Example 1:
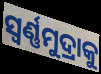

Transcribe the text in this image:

ସ୍ଵର୍ଣ୍ଣମୁଦ୍ରାକୁ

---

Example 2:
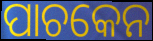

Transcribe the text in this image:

ପାଚକେନ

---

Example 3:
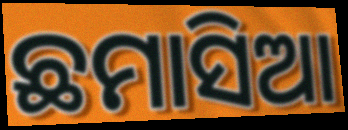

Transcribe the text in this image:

ଛମାସିଆ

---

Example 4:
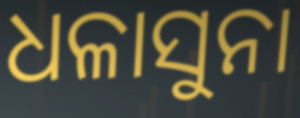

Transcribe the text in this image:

ଧଳାସୁନା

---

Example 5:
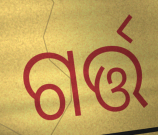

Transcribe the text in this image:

ଗର୍ତ୍ତ